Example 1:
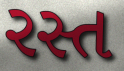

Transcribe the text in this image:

રસ્ત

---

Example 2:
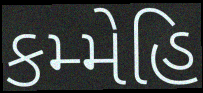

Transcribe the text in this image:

કમ્મેહિ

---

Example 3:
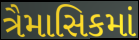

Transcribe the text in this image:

ત્રૈમાસિકમાં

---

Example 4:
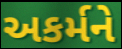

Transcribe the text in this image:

અકર્મને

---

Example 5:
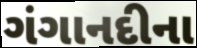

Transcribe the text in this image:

ગંગાનદીના